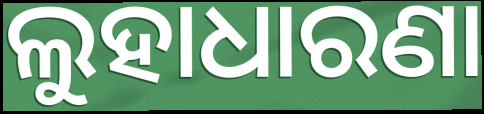
ଲୁହାଧାରଣା